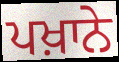
ਪਖ਼ਾਨੇ